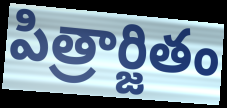
పిత్రార్జితం